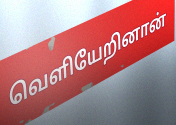
வெளியேறினான்